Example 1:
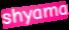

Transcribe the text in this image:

shyama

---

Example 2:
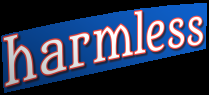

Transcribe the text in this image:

harmless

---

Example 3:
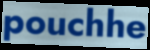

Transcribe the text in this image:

pouchhe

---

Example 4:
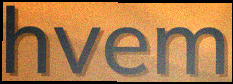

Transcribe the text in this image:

hvem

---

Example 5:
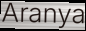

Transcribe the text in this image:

Aranya